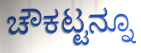
ಚೌಕಟ್ಟನ್ನೂ